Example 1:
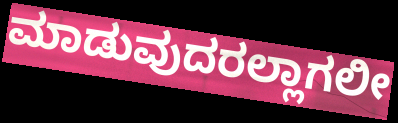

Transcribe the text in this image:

ಮಾಡುವುದರಲ್ಲಾಗಲೀ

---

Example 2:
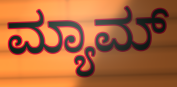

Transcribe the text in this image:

ಮ್ಯಾಮ್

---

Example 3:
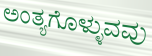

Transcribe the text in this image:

ಅಂತ್ಯಗೊಳ್ಳುವವು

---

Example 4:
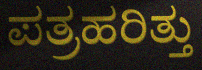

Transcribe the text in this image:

ಪತ್ರಹರಿತ್ತು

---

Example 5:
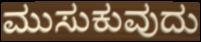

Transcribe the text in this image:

ಮುಸುಕುವುದು